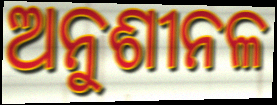
ଅନୁଶୀନଳ